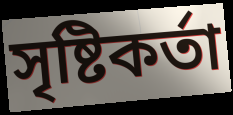
সৃষ্টিকৰ্তা